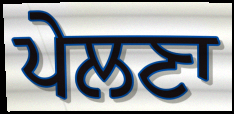
ਪੇਲਣਾ